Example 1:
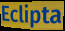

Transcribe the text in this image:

Eclipta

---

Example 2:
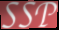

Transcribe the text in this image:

SSP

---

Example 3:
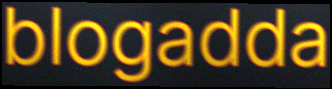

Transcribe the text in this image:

blogadda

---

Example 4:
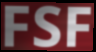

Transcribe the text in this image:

FSF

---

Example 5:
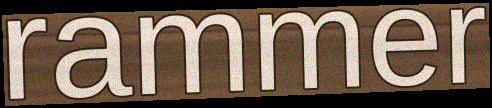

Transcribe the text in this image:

rammer